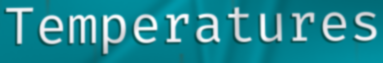
Temperatures